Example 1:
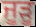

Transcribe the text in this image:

ਜੂੜੂ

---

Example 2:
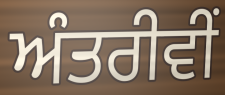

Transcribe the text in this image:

ਅੰਤਰੀਵੀਂ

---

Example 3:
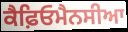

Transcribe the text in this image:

ਕੈਫ਼ਿਓਮੈਨਸੀਆ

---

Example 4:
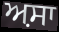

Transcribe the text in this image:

ਅ਼ਸਾ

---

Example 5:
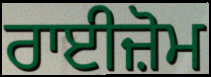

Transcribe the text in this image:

ਰਾਈਜ਼ੋਮ